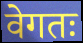
वेगतः